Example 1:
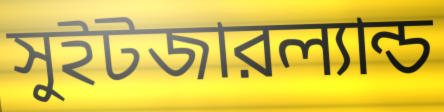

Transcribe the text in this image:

সুইটজারল্যান্ড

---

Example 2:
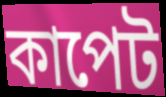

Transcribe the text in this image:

কাপেট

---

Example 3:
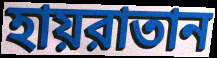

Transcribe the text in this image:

হায়রাতান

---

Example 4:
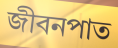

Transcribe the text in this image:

জীবনপাত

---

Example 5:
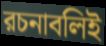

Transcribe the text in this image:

রচনাবলিই